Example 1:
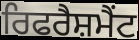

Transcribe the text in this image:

ਰਿਫਰੈਸ਼ਮੈਂਟ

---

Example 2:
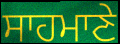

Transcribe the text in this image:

ਸਾਹਮਾਣੇ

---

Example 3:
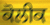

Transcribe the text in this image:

ਕੋਲੀਕ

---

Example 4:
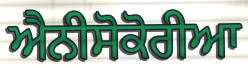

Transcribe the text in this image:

ਐਨੀਸੋਕੋਰੀਆ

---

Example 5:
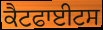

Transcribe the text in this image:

ਕੈਟਫਾਈਟਸ